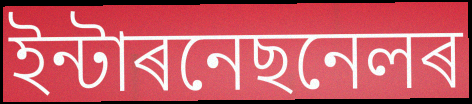
ইন্টাৰনেছনেলৰ